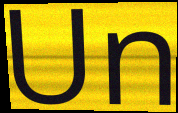
Un